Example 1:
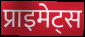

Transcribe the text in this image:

प्राइमेट्स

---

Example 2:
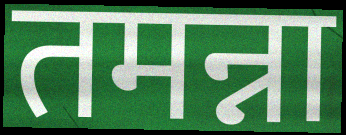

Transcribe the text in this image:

तमन्ना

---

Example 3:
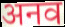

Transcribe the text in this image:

अनव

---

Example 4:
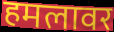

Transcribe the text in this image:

हमलावर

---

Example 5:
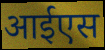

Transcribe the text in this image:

आईएस